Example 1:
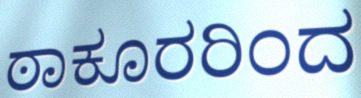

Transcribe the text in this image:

ಠಾಕೂರರಿಂದ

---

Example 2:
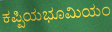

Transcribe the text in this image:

ಕಪ್ಪಿಯಭೂಮಿಯಂ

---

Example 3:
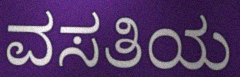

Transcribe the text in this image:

ವಸತಿಯ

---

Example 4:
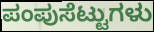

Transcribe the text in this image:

ಪಂಪುಸೆಟ್ಟುಗಳು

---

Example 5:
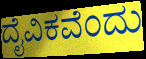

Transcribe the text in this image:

ದೈವಿಕವೆಂದು